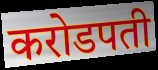
करोडपती